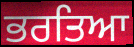
ਭਰਤਿਆ